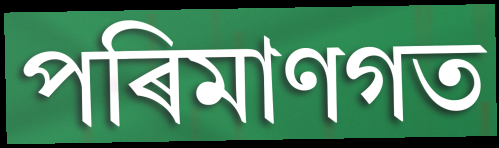
পৰিমাণগত